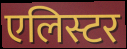
एलिस्टर